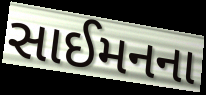
સાઈમનના